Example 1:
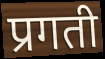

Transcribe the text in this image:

प्रगती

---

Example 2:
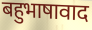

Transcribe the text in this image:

बहुभाषावाद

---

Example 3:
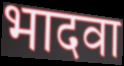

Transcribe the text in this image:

भादवा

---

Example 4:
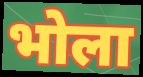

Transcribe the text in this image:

भोला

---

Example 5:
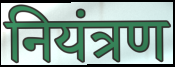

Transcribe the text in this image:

नियंत्रण